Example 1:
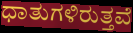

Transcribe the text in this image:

ಧಾತುಗಳಿರುತ್ತವೆ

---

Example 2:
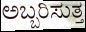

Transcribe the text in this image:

ಅಬ್ಬರಿಸುತ್ತ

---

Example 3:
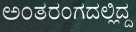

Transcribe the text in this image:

ಅಂತರಂಗದಲ್ಲಿದ್ದ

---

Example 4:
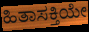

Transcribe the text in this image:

ಹಿತಾಸಕ್ತಿಯೇ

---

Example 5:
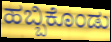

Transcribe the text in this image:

ಹಬ್ಬಿಕೊಂಡು